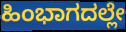
ಹಿಂಭಾಗದಲ್ಲೇ